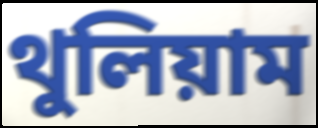
থুলিয়াম